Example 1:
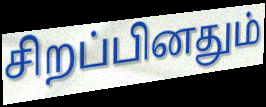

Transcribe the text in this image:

சிறப்பினதும்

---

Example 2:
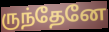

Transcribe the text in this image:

ருந்தேனே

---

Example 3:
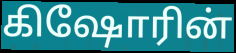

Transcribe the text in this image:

கிஷோரின்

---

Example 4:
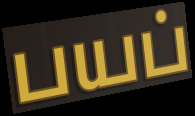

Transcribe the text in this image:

பயப்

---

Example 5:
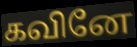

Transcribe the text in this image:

கவினே